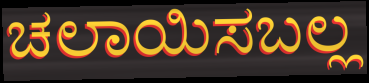
ಚಲಾಯಿಸಬಲ್ಲ